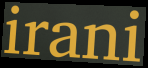
irani